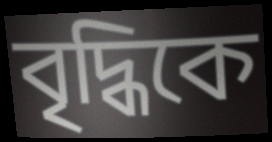
বৃদ্ধিকে